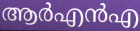
ആർഎൻഎ